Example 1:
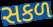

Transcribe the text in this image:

સકળ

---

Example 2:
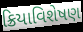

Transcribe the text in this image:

ક્રિયાવિશેષણ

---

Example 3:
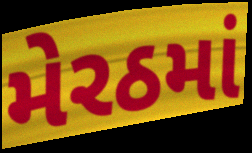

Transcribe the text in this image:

મેરઠમાં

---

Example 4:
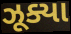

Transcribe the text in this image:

ઝૂક્યા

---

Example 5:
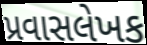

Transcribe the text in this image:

પ્રવાસલેખક